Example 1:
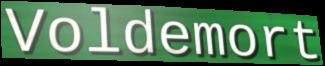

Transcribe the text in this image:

Voldemort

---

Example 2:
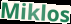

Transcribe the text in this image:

Miklos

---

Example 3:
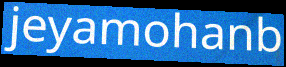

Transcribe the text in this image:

jeyamohanb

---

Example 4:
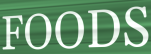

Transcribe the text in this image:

FOODS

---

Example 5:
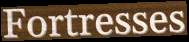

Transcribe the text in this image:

Fortresses